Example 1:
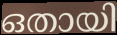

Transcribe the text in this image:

ഒതായി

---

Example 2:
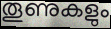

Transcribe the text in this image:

തൂണുകളും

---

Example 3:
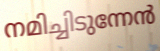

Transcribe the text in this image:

നമിച്ചിടുന്നേൻ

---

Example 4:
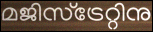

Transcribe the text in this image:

മജിസ്ട്രേറ്റിനു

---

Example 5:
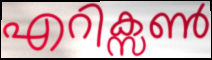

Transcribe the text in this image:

എറിക്സൺ